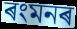
ৰংমনৰ